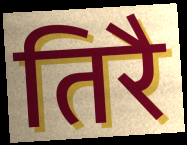
तिरै